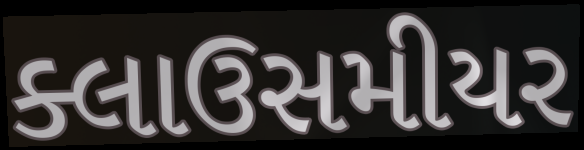
ક્લાઉસમીયર